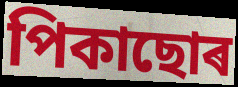
পিকাছোৰ